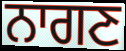
ਨਾਗਣ